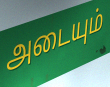
அடையும்